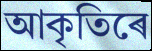
আকৃতিৰে